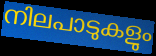
നിലപാടുകളും